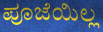
ಪೂಜೆಯಿಲ್ಲ